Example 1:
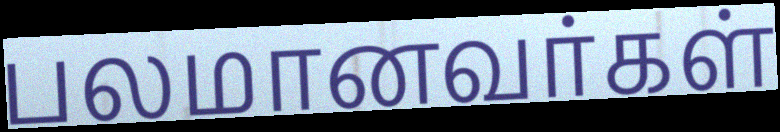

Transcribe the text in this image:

பலமானவர்கள்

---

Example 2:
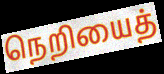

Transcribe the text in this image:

நெறியைத்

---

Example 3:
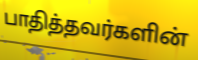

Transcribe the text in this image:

பாதித்தவர்களின்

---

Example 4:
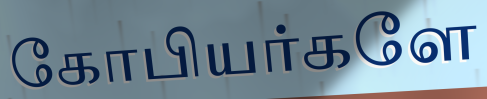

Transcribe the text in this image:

கோபியர்களே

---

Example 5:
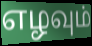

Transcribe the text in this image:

எழவும்